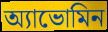
অ্যাভোমিন